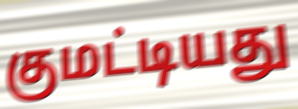
குமட்டியது